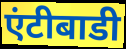
एंटीबाडी